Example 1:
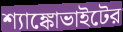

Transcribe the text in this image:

শ্যাঙ্কোভাইটের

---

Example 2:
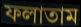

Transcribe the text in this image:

ফলাতাম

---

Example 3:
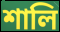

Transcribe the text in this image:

শালি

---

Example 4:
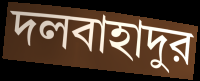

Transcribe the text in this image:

দলবাহাদুর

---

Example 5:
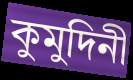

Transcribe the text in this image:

কুমুদিনী